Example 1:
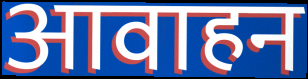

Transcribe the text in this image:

आवाहन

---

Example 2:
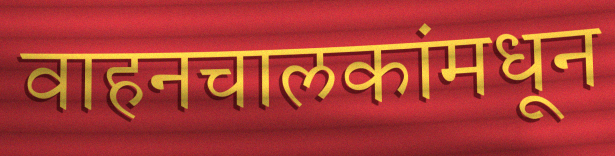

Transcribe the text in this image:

वाहनचालकांमधून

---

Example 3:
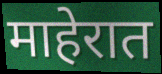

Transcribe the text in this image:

माहेरात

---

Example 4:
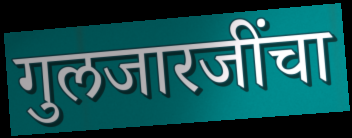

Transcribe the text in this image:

गुलजारजींचा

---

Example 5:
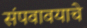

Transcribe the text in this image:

संपवावयाचे